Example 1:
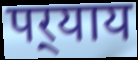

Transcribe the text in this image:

पर्याय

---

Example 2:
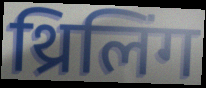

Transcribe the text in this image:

थ्रिलिंग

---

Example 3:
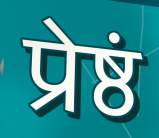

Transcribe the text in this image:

प्रेष्ठं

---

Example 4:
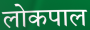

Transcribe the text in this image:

लोकपाल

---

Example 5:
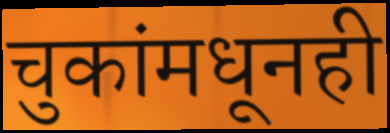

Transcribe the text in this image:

चुकांमधूनही